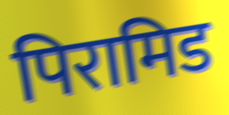
पिरामिड